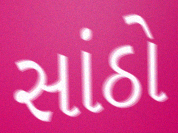
સાંઠો